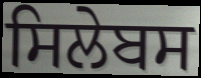
ਸਿਲੇਬਸ